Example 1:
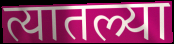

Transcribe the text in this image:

त्यातल्या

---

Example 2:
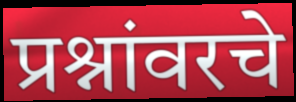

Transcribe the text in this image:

प्रश्नांवरचे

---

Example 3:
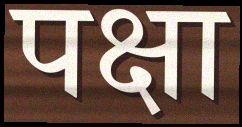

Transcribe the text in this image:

पक्षा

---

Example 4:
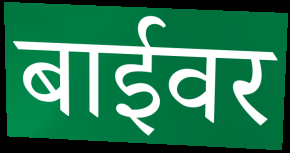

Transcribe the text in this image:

बाईवर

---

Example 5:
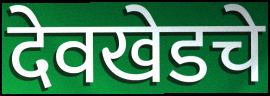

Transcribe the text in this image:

देवखेडचे